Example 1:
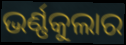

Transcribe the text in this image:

ଭର୍ଣ୍ଣକୁଲାର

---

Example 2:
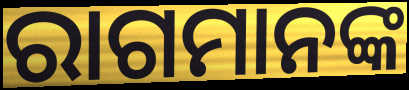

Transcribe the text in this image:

ରାଗମାନଙ୍କ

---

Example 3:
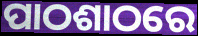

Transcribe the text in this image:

ପାଠଶାଠରେ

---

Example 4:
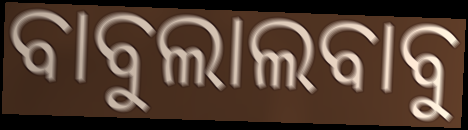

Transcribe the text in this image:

ବାବୁଲାଲବାବୁ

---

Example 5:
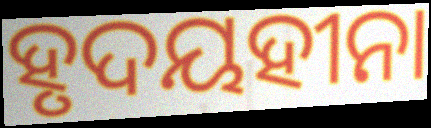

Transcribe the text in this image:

ହୃଦୟହୀନା